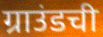
ग्राउंडची